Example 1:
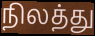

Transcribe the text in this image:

நிலத்து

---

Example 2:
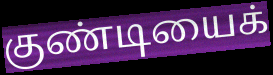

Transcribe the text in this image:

குண்டியைக்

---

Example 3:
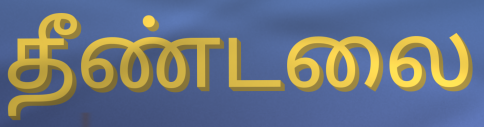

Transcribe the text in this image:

தீண்டலை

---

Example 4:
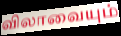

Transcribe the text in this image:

விலாவையும்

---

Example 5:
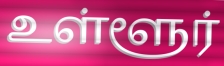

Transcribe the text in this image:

உள்ளூர்